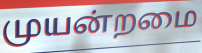
முயன்றமை